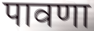
पावणा